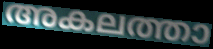
അകലത്താ